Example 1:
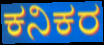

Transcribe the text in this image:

ಕನಿಕರ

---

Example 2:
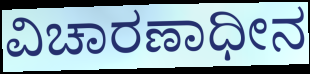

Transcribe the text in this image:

ವಿಚಾರಣಾಧೀನ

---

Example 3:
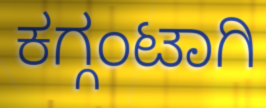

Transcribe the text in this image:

ಕಗ್ಗಂಟಾಗಿ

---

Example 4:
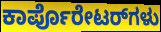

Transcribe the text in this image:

ಕಾರ್ಪೊರೇಟರ್‌ಗಳು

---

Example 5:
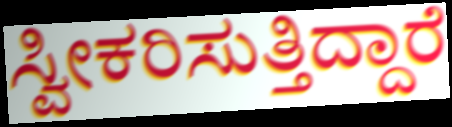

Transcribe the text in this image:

ಸ್ವೀಕರಿಸುತ್ತಿದ್ದಾರೆ